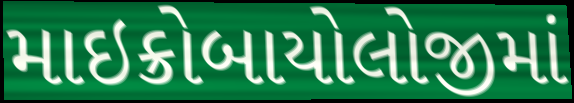
માઇક્રોબાયોલોજીમાં